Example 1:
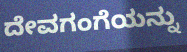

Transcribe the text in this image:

ದೇವಗಂಗೆಯನ್ನು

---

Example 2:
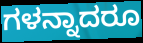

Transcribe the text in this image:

ಗಳನ್ನಾದರೂ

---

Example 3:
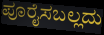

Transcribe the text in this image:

ಪೂರೈಸಬಲ್ಲದು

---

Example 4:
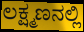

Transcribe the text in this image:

ಲಕ್ಷ್ಮಣನಲ್ಲಿ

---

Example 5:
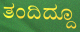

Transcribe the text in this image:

ತಂದಿದ್ದೂ